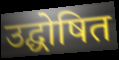
उद्घोषित